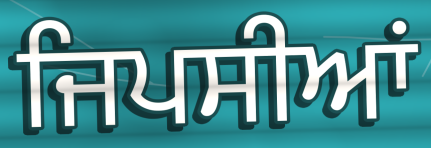
ਜਿਪਸੀਆਂ